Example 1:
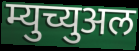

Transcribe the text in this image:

म्युच्युअल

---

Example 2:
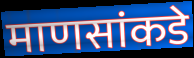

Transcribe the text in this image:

माणसांकडे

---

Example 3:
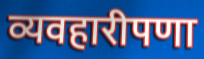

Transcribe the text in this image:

व्यवहारीपणा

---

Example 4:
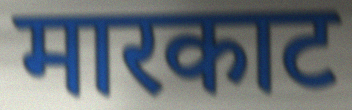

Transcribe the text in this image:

मारकाट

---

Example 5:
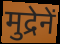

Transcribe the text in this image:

मुद्रेनें